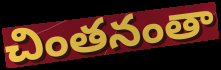
చింతనంతా